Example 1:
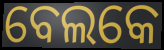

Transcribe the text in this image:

ବେଲକେ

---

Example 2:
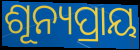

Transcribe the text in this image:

ଶୂନ୍ୟପ୍ରାୟ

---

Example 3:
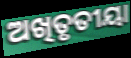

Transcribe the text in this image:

ଅଖିତୃତୀୟା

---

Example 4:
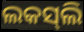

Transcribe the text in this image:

ଲକସ୍‍ଲି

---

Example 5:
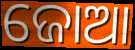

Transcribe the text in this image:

ଜୋଆ